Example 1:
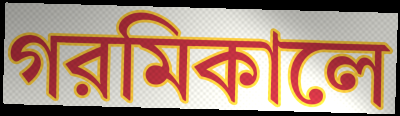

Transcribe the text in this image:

গরমিকালে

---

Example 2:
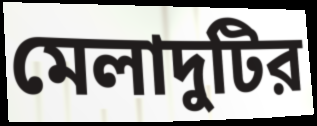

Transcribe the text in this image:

মেলাদুটির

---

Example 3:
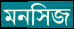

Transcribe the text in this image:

মনসিজ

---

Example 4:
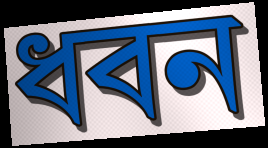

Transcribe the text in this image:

ধবন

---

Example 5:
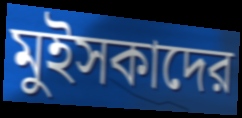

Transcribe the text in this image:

মুইসকাদের